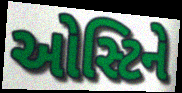
ઓસ્ટિને